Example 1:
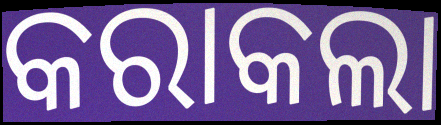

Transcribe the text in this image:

କରାକଲା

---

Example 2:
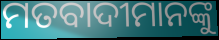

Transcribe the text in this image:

ମତବାଦୀମାନଙ୍କୁ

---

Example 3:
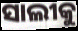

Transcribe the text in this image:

ସାଲୀକୁ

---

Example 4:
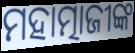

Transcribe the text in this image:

ମହାତ୍ମାଜୀଙ୍କ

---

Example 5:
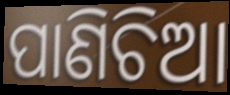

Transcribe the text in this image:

ପାଣିଚିଆ